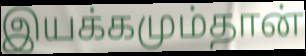
இயக்கமும்தான்